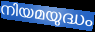
നിയമയുദ്ധം